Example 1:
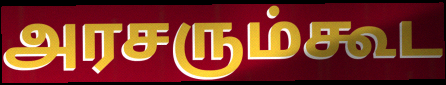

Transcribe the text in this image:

அரசரும்கூட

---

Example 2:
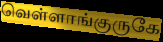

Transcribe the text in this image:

வெள்ளாங்குருகே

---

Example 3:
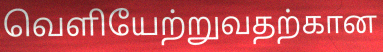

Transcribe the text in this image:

வெளியேற்றுவதற்கான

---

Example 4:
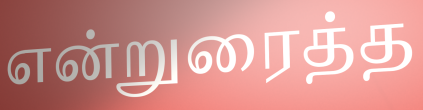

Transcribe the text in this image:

என்றுரைத்த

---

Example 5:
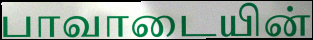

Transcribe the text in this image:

பாவாடையின்